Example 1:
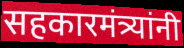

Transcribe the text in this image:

सहकारमंत्र्यांनी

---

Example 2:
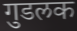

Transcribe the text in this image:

गुडलक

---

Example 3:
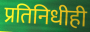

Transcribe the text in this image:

प्रतिनिधीही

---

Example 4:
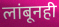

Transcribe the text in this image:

लांबूनही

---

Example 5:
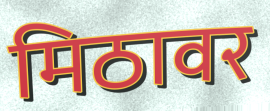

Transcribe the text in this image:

मिठावर